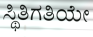
ಸ್ಥಿತಿಗತಿಯೇ